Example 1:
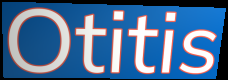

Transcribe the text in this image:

Otitis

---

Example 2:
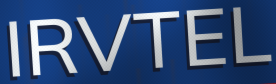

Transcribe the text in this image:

IRVTEL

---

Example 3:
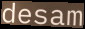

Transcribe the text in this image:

desam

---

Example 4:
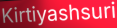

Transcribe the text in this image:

Kirtiyashsuri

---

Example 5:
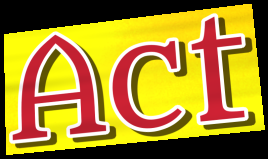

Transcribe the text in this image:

Act